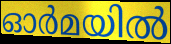
ഓർമയിൽ